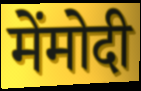
मेंमोदी